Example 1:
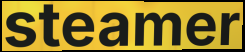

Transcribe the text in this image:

steamer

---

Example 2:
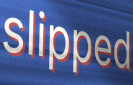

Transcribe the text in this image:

slipped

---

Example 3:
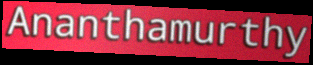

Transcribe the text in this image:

Ananthamurthy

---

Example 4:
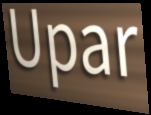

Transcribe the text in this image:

Upar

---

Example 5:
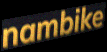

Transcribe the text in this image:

nambike